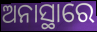
ଅନାସ୍ଥାରେ